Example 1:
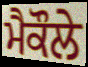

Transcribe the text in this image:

ਮੈਕੌਲੇ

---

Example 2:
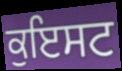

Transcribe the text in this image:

ਕੁਇਸਟ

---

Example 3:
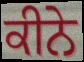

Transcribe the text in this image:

ਕੀਨੇ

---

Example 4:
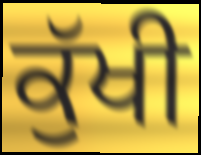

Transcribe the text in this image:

ਕੁੱਖੀ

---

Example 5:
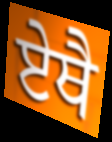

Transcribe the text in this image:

ਏਥੈ